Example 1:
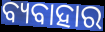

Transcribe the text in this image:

ବ୍ୟବାହାର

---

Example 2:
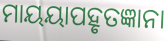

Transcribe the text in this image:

ମାୟୟାପହୃତଜ୍ଞାନା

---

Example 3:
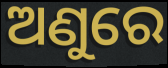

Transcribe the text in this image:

ଅଣୁରେ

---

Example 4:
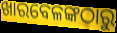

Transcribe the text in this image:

ଖାରବେଳଙ୍କଠାରୁ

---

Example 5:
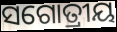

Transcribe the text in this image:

ସଗୋତ୍ରୀୟ